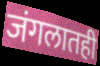
जंगलातही